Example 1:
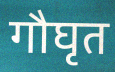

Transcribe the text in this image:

गौघृत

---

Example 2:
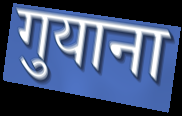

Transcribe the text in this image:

गुयाना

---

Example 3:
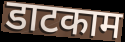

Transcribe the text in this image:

डाटकाम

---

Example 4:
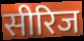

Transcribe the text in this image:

सीरिज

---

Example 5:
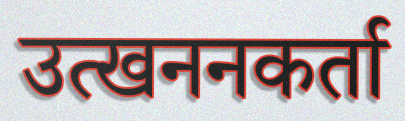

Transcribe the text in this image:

उत्खननकर्ता